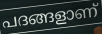
പദങ്ങളാണ്